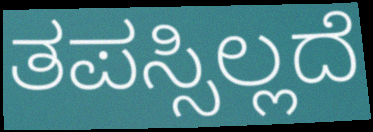
ತಪಸ್ಸಿಲ್ಲದೆ